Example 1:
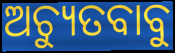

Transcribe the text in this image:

ଅଚ୍ୟୁତବାବୁ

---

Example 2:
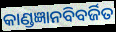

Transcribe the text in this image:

କାଣ୍ଡଜ୍ଞାନବିବର୍ଜିତ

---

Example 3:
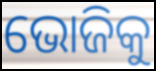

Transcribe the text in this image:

ଭୋଜିକୁ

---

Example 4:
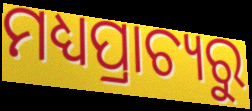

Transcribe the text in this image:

ମଧ୍ୟପ୍ରାଚ୍ୟରୁ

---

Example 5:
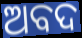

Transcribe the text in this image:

ଅବଦ